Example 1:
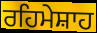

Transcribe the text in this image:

ਰਹਿਮੇਸ਼ਾਹ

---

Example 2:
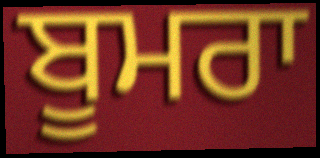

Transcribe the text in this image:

ਬੂਮਰਾ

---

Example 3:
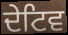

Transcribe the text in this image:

ਦੇਟਿਵ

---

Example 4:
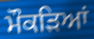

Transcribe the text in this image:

ਮੌਕੜਿਆਂ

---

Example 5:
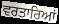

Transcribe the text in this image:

ਵਰਤਾਰਿਆਂ